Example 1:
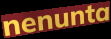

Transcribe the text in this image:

nenunta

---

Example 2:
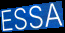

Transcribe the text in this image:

ESSA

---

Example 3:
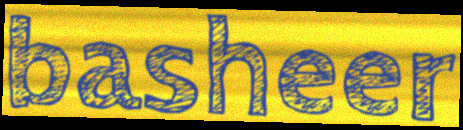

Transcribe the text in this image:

basheer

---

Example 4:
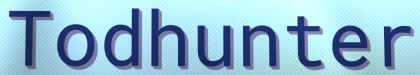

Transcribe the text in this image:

Todhunter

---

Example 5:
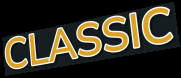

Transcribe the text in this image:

CLASSIC